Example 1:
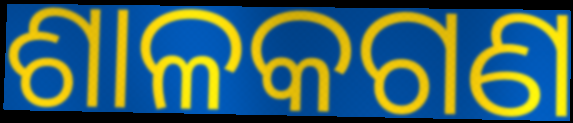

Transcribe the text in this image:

ଶାଳକଗଣ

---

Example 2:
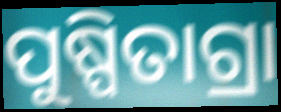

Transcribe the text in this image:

ପୁଷ୍ପିତାଗ୍ରା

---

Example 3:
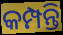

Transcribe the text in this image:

କମ୍ପନ୍ତି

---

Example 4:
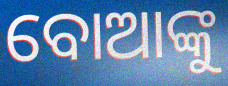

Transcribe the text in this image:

ବୋଆଙ୍କୁ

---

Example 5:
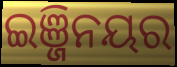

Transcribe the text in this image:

ଇଞ୍ଜିନୟର